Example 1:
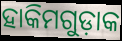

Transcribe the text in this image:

ହାକିମଗୁଡ଼ାକ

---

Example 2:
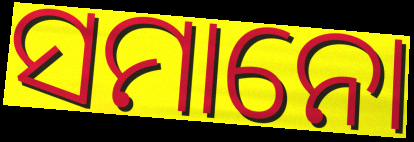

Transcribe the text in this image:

ସମାନୋ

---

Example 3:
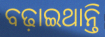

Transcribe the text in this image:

ବଢ଼ାଇଥାନ୍ତି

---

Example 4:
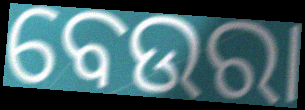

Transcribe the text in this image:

ବେଉରା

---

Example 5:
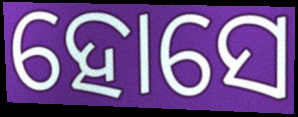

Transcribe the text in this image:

ହୋସେ